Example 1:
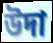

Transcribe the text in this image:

উদা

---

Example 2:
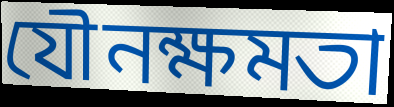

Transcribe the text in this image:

যৌনক্ষমতা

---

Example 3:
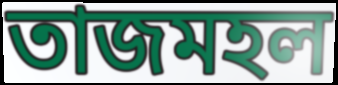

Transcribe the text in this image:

তাজমহল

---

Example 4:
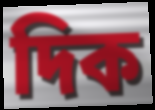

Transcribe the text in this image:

দিক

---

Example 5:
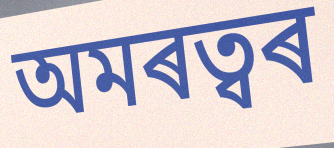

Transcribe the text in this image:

অমৰত্বৰ